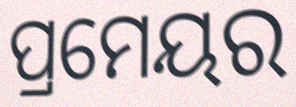
ପ୍ରମେୟର